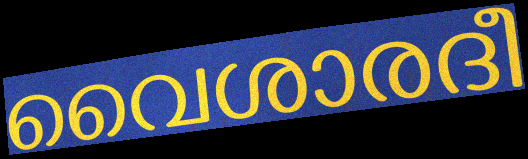
വൈശാരദീ